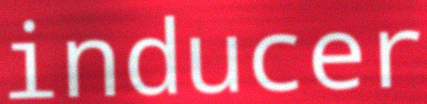
inducer